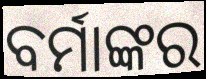
ବର୍ମାଙ୍କର